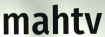
mahtv